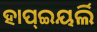
ହାପ୍ଇୟର୍ଲି